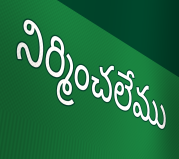
నిర్మించలేము